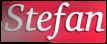
Stefan